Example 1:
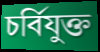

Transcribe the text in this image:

চৰ্বিযুক্ত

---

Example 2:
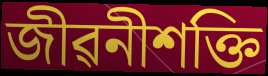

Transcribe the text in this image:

জীৱনীশক্তি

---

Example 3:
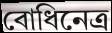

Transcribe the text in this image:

বোধিনেত্ৰ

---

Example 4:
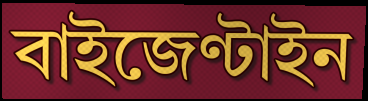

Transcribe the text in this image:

বাইজেণ্টাইন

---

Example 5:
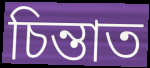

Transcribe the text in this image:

চিন্তাত